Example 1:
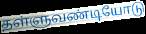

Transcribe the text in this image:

தள்ளுவண்டியோடு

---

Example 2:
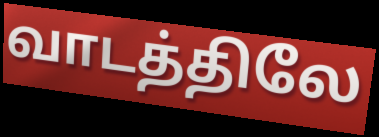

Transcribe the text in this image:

வாடத்திலே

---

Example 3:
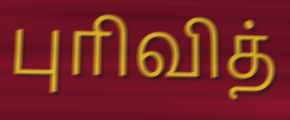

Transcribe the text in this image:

புரிவித்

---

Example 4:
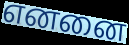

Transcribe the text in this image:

எனனை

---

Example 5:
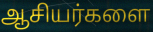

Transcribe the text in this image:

ஆசியர்களை